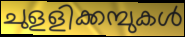
ചുളളിക്കമ്പുകൾ